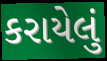
કરાયેલું